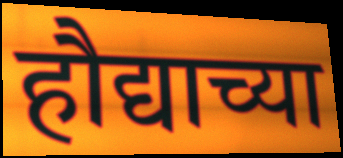
हौद्याच्या